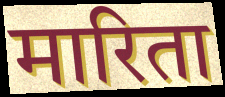
मारिता